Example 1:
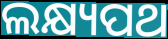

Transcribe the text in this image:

ଲକ୍ଷ୍ୟପଥ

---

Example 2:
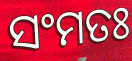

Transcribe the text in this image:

ସଂମତଃ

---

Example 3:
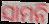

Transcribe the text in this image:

ସାମନି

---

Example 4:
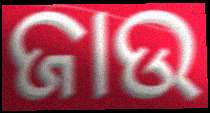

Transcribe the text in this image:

ଜାଉ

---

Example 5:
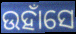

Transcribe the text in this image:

ଉହାଁସେ